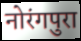
नोरंगपुरा